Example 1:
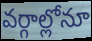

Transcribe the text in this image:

వర్గాల్లోనూ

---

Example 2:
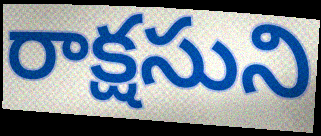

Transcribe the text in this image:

రాక్షసుని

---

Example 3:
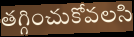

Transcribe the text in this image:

తగ్గించుకోవలసి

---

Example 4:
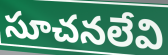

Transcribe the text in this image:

సూచనలేవి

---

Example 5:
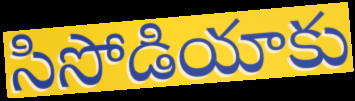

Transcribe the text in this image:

సిసోడియాకు